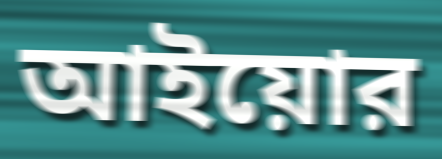
আইয়োর